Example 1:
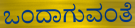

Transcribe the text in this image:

ಒಂದಾಗುವಂತೆ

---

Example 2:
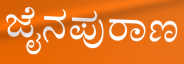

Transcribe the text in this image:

ಜೈನಪುರಾಣ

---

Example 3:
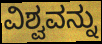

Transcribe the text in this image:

ವಿಶ್ವವನ್ನು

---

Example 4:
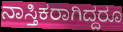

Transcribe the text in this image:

ನಾಸ್ತಿಕರಾಗಿದ್ದರೂ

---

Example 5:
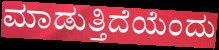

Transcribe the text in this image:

ಮಾಡುತ್ತಿದೆಯೆಂದು